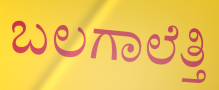
ಬಲಗಾಲೆತ್ತಿ